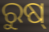
ରୁଷ୍